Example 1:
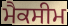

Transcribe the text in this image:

ਮੈਕਸੀਮ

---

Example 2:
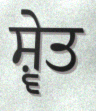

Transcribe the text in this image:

ਸ਼੍ਵੇਤ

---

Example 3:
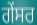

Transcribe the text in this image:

ਗੇਂਸਰ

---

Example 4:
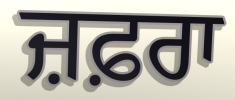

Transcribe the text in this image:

ਜ਼ਫ਼ਰਾ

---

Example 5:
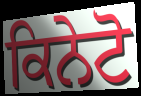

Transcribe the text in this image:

ਕਿਨੇਟੋ